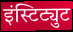
इंस्टिट्युट